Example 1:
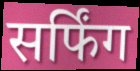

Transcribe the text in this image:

सर्फिंग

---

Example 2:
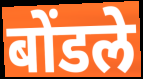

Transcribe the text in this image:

बोंडले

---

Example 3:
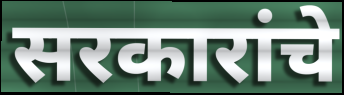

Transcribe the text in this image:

सरकारांचे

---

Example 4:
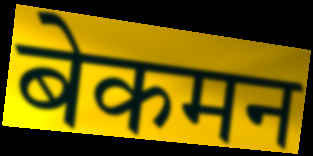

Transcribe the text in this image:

बेकमन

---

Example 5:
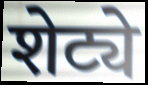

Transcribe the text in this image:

शेट्ये